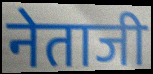
नेताजी